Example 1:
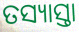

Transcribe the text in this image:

ତସ୍ୟାସ୍ତା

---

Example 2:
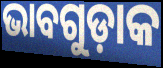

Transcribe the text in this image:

ଭାବଗୁଡ଼ାକ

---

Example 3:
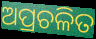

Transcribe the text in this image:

ଅପ୍ରଚଳିତ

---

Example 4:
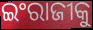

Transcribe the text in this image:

ଇଂରାଜୀକୁ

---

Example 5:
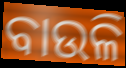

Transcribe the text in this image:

ବାଉଳି